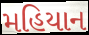
મહિયાન